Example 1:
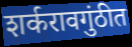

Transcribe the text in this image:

शर्करावगुंठीत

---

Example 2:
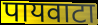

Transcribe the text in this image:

पायवाटा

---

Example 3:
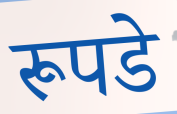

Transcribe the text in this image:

रूपडे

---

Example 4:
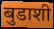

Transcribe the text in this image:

बुडाशी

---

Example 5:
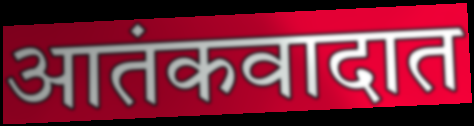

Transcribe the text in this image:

आतंकवादात